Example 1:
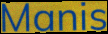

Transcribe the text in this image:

Manis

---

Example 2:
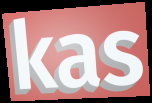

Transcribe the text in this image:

kas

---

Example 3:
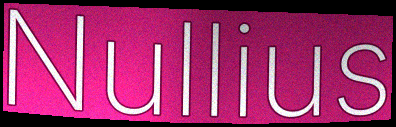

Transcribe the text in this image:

Nullius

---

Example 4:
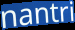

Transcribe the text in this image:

nantri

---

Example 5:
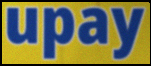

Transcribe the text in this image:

upay